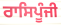
ਰਾਸਿਪੂੰਜੀ